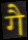
गै